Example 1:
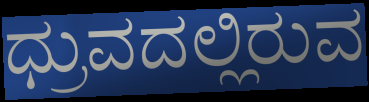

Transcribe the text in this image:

ಧ್ರುವದಲ್ಲಿರುವ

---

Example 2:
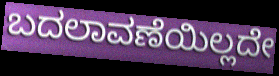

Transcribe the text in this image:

ಬದಲಾವಣೆಯಿಲ್ಲದೇ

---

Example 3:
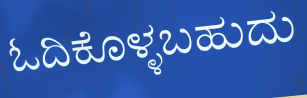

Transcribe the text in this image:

ಓದಿಕೊಳ್ಳಬಹುದು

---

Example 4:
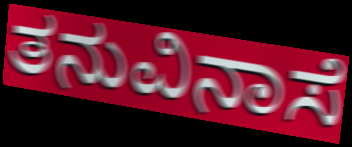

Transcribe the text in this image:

ತನುವಿನಾಸೆ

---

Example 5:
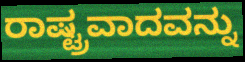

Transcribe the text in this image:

ರಾಷ್ಟ್ರವಾದವನ್ನು